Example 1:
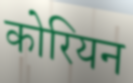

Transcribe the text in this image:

कोरियन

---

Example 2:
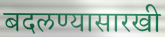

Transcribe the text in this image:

बदलण्यासारखी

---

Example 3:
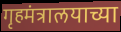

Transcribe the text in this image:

गृहमंत्रालयाच्या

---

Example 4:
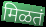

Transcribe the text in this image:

मिळतं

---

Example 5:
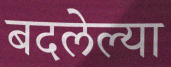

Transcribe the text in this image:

बदलेल्या